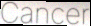
Cancer